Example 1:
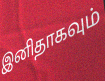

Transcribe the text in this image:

இனிதாகவும்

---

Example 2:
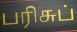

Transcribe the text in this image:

பரிசுப்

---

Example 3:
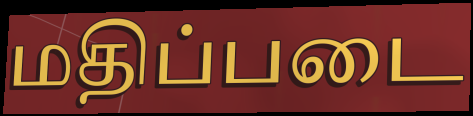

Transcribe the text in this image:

மதிப்படை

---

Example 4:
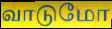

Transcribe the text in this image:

வாடுமோ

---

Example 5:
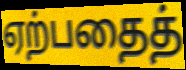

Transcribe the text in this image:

ஏற்பதைத்